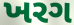
ખરગ